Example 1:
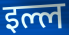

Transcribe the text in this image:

इल्ल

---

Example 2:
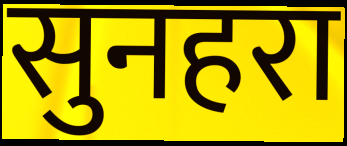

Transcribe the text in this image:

सुनहरा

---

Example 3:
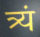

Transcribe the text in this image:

त्र्यं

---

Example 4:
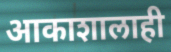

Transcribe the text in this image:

आकाशालाही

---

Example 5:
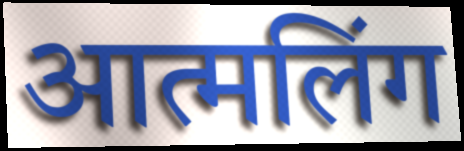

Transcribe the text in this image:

आत्मलिंग